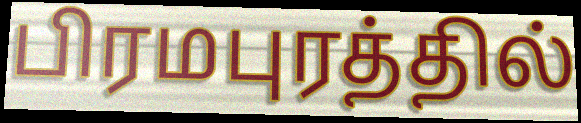
பிரமபுரத்தில்